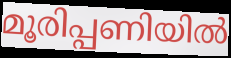
മൂരിപ്പണിയിൽ